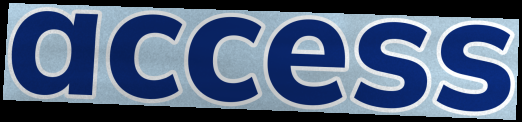
access